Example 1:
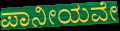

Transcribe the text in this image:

ಪಾನೀಯವೇ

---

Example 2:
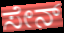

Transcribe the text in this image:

ಸೇನ್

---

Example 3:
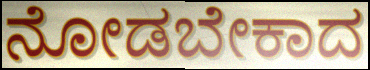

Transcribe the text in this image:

ನೋಡಬೇಕಾದ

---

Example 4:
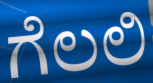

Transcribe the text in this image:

ಗೆಲಲಿ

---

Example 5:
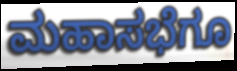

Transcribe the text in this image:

ಮಹಾಸಭೆಗೂ